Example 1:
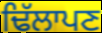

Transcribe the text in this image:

ਢਿੱਲਾਪਣ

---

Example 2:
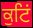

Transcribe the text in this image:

ਕੁਟਿਂ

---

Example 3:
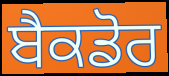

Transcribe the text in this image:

ਬੈਕਡੋਰ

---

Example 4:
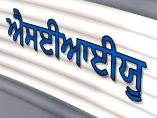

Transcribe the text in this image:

ਐਸਈਆਈਯੂ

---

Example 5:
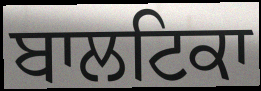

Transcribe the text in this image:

ਬਾਲਟਿਕਾ